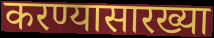
करण्यासारख्या